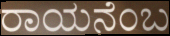
ರಾಯನೆಂಬ